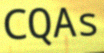
CQAs